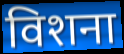
विशना